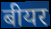
बीयर